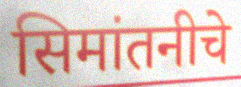
सिमांतनीचे